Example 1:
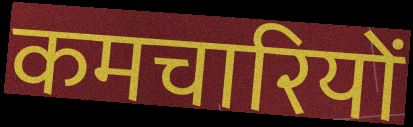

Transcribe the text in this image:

कमचारियों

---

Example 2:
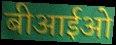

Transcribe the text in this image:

बीआईओ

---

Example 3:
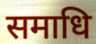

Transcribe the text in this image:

समाधि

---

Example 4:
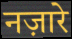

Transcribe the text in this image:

नज़ारे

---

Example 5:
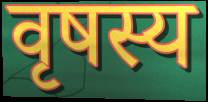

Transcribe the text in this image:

वृषस्य